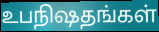
உபநிஷதங்கள்